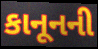
કાનૂનની